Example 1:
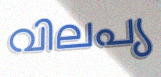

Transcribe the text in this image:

വിലപ്യ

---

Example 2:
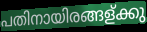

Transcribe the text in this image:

പതിനായിരങ്ങള്ക്കു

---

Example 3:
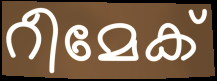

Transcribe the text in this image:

റീമേക്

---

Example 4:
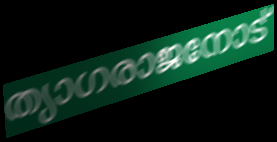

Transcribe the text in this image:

ത്യാഗരാജനോട്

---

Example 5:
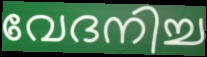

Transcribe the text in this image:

വേദനിച്ച